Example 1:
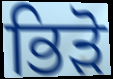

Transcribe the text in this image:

ਭਿੜੋ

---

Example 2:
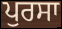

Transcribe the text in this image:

ਪੁਰਸਾ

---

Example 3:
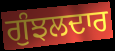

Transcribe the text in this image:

ਗੁੰਝਲਦਾਰ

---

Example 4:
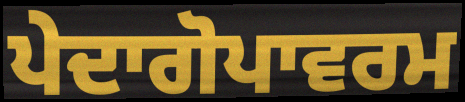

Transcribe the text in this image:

ਪੇਦਾਗੋਪਾਵਰਮ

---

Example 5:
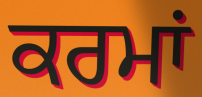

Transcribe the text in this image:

ਕਰਮਾਂ